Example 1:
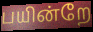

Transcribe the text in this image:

பயின்றே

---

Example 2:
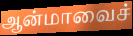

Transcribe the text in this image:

ஆன்மாவைச்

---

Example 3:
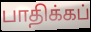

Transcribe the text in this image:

பாதிக்கப்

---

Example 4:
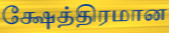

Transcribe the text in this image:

க்ஷேத்திரமான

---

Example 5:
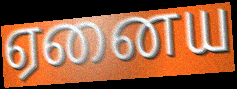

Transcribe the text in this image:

ஏனைய